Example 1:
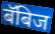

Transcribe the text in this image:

बॅबिज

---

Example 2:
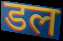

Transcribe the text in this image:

डल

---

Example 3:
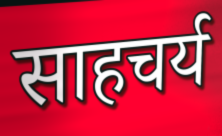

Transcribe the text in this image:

साहचर्य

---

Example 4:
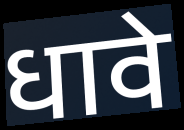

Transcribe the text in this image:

धावे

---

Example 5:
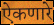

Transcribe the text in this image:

ऐकणारे